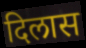
दिलास